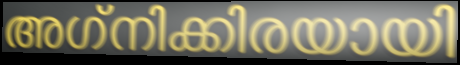
അഗ്‌നിക്കിരയായി